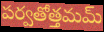
పర్వతోత్తమమ్